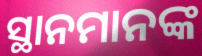
ସ୍ଥାନମାନଙ୍କ